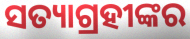
ସତ୍ୟାଗ୍ରହୀଙ୍କର